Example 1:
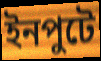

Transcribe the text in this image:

ইনপুটে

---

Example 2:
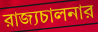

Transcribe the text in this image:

রাজ্যচালনার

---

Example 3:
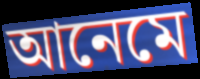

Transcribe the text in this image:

আনেমে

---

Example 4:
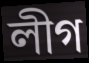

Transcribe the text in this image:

লীগ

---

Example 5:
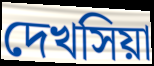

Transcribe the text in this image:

দেখসিয়া